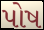
પોષ